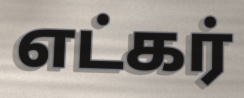
எட்கர்